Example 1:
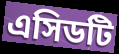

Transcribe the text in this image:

এসিডটি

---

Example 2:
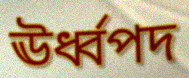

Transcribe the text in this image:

ঊর্ধ্বপদ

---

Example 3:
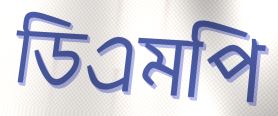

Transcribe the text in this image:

ডিএমপি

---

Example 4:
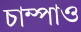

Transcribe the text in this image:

চাম্পাও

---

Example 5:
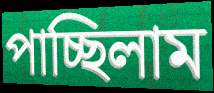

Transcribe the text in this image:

পাচ্ছিলাম